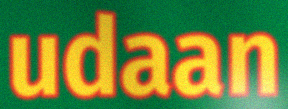
udaan